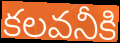
కలవనీకి